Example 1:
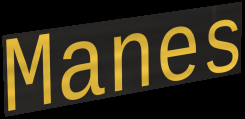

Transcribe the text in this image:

Manes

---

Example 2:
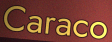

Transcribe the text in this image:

Caraco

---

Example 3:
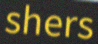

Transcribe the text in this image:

shers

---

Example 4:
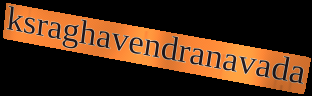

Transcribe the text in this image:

ksraghavendranavada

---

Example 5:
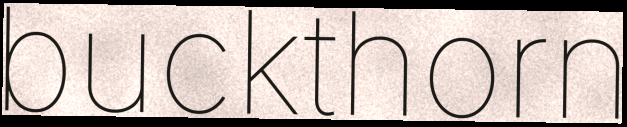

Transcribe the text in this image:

buckthorn